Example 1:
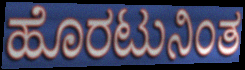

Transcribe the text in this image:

ಹೊರಟುನಿಂತ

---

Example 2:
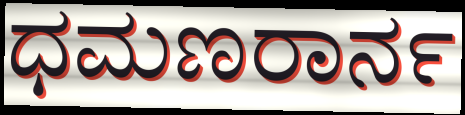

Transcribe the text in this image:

ಧಮಣರಾರ್ನ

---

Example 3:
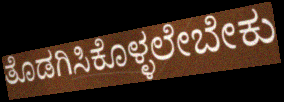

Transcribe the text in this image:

ತೊಡಗಿಸಿಕೊಳ್ಳಲೇಬೇಕು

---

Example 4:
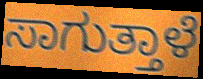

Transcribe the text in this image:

ಸಾಗುತ್ತಾಳೆ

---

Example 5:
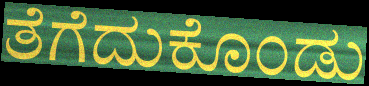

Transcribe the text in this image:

ತೆಗೆದುಕೊಂಡು